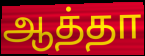
ஆத்தா